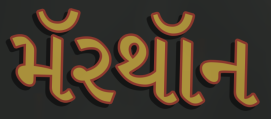
મૅરથૉન